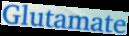
Glutamate